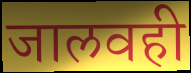
जालवही